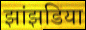
झांझडिया